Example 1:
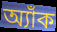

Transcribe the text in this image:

অ্যাঁক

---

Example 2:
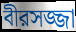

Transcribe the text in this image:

বীরসজ্জা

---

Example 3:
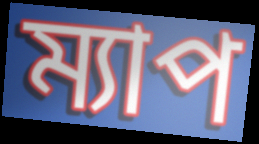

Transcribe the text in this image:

ম্যাপ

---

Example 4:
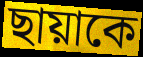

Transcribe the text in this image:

ছায়াকে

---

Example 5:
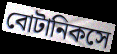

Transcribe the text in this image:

বোটানিকসে